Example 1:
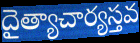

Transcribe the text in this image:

దైత్యాచార్యస్తవ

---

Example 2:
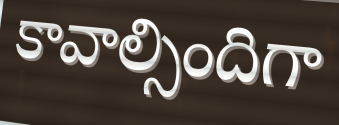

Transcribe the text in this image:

కావాల్సిందిగా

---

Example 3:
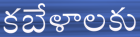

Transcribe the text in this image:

కబేళాలకు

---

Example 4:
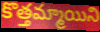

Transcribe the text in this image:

కొత్తమ్మాయిని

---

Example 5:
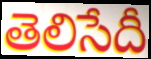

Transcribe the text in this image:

తెలిసేదీ